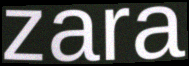
zara